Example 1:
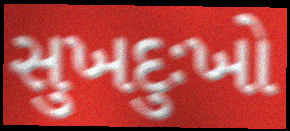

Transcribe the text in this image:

સુખદુઃખો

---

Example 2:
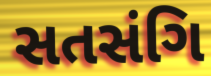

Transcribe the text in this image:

સતસંગિ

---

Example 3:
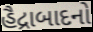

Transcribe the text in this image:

હૈદ્રાબાદનો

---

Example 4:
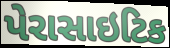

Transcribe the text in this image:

પેરાસાઇટિક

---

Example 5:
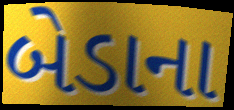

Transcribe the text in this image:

બેડાના